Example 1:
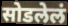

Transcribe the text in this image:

सोडलेलं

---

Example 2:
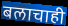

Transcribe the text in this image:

बलाचाही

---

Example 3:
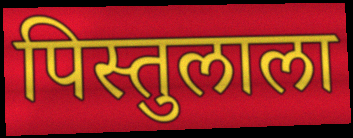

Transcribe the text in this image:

पिस्तुलाला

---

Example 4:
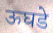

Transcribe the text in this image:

ऊघडे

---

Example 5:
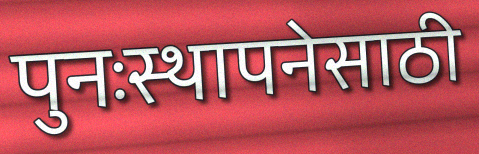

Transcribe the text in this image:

पुनःस्थापनेसाठी